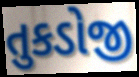
તુકડોજી